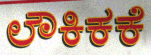
ಲೌಕಿಕಕೆ